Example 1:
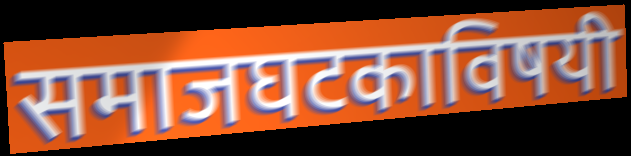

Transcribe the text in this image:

समाजघटकाविषयी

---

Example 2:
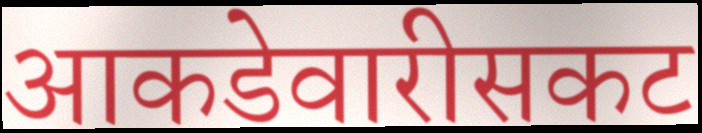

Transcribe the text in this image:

आकडेवारीसकट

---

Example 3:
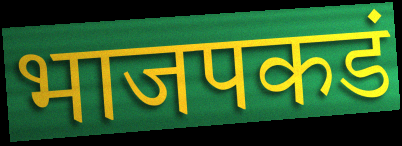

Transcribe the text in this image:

भाजपकडं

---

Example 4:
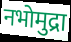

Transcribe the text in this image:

नभोमुद्रा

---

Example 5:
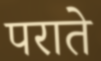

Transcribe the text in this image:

पराते